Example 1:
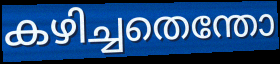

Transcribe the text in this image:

കഴിച്ചതെന്തോ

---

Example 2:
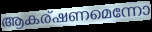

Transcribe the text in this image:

ആകര്ഷണമെന്നോ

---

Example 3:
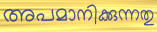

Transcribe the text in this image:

അപമാനിക്കുന്നതു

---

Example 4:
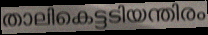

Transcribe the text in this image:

താലികെട്ടടിയന്തിരം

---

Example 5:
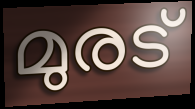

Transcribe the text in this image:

മുരട്